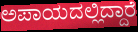
ಅಪಾಯದಲ್ಲಿದ್ದಾರೆ